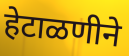
हेटाळणीने